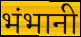
भंभानी